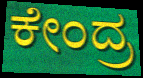
ಕೇಂದ್ರ